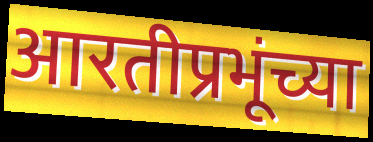
आरतीप्रभूंच्या